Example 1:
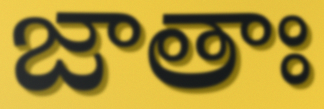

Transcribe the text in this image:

జాతాః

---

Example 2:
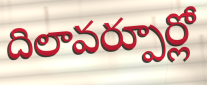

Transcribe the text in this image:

దిలావర్పూర్లో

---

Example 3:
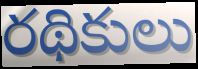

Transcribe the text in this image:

రథికులు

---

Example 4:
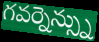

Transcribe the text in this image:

గవర్నెన్స్ను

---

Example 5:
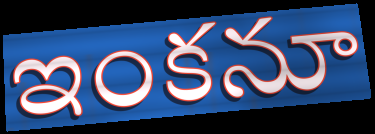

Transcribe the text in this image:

ఇంకనూ